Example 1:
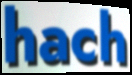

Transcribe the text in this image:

hach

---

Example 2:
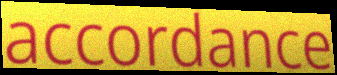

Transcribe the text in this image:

accordance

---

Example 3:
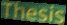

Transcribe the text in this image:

Thesis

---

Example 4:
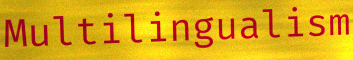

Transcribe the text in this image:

Multilingualism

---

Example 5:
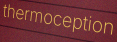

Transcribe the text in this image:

thermoception